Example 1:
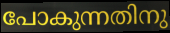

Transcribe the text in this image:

പോകുന്നതിനു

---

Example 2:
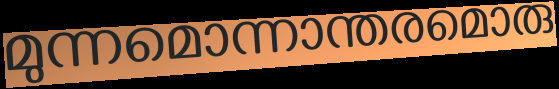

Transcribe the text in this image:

മുന്നമൊന്നാന്തരമൊരു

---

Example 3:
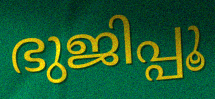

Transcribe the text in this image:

ഭുജിപ്പൂ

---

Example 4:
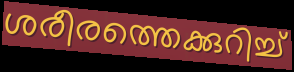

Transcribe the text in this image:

ശരീരത്തെക്കുറിച്ച്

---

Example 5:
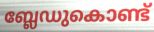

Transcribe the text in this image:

ബ്ലേഡുകൊണ്ട്